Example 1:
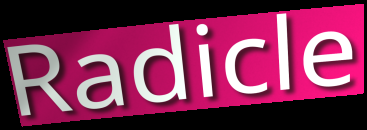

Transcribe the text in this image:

Radicle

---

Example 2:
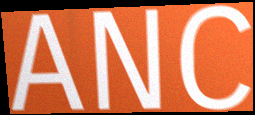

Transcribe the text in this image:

ANC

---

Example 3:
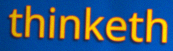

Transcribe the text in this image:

thinketh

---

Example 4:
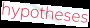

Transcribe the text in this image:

hypotheses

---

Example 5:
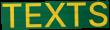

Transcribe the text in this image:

TEXTS